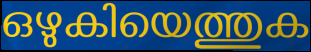
ഒഴുകിയെത്തുക